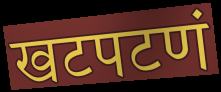
खटपटणं